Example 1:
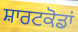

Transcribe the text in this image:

ਸ਼ਾਰਟਕੋਡਾਂ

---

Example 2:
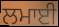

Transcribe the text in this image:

ਲਮਾਈ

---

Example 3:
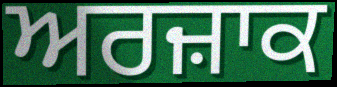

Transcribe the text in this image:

ਅਰਜ਼ਾਕ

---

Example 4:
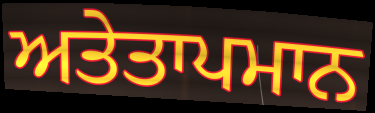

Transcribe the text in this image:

ਅਤੇਤਾਪਮਾਨ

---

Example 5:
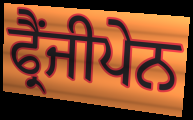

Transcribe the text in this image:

ਫ੍ਰੈਂਜੀਪੇਨ